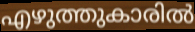
എഴുത്തുകാരിൽ